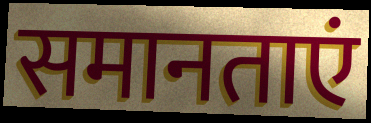
समानताएं